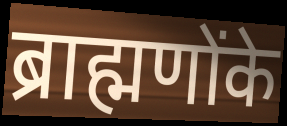
ब्राह्मणोंके